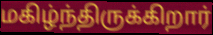
மகிழ்ந்திருக்கிறார்